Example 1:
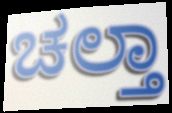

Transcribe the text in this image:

ಚಲ್ತಾ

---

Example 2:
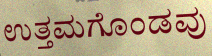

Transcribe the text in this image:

ಉತ್ತಮಗೊಂಡವು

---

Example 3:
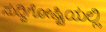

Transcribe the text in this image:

ಸುದ್ದಿಗೋಷ್ಟಿಯಲ್ಲಿ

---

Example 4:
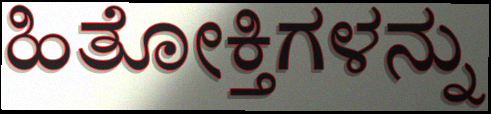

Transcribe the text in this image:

ಹಿತೋಕ್ತಿಗಳನ್ನು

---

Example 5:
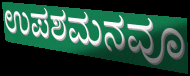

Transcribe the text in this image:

ಉಪಶಮನವೂ